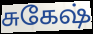
சுகேஷ்